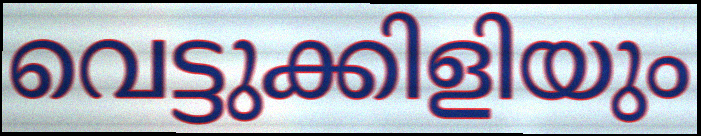
വെട്ടുക്കിളിയും